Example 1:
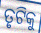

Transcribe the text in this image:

ତୃଟିକୁ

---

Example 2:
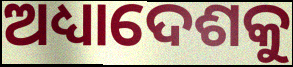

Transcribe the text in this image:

ଅଧ୍ୟାଦେଶକୁ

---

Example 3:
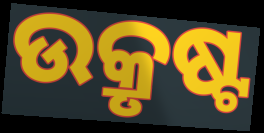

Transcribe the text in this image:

ଉକ୍ରୃଷ୍ଟ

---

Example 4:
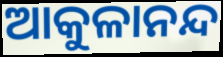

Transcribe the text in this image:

ଆକୁଳାନନ୍ଦ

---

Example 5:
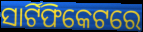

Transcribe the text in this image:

ସାର୍ଟିଫିକେଟରେ